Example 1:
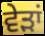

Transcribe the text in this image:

ਵੇੜਾਂ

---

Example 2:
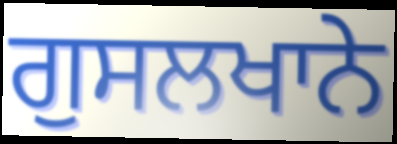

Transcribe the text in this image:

ਗੁਸਲਖਾਨੇ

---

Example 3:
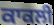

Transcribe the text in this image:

ਕਾਕਲੀ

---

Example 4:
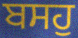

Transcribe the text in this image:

ਬਸਹੁ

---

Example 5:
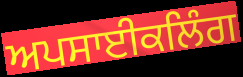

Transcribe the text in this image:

ਅਪਸਾਈਕਲਿੰਗ